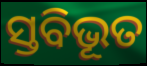
ସ୍ତବିଭୂତ